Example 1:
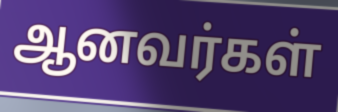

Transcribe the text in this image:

ஆனவர்கள்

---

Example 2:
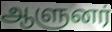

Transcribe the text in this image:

ஆளுனர்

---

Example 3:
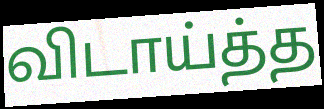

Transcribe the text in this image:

விடாய்த்த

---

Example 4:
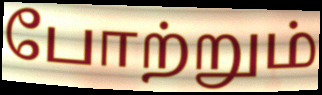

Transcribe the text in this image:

போற்றும்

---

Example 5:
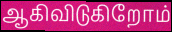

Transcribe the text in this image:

ஆகிவிடுகிறோம்